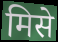
मिसे